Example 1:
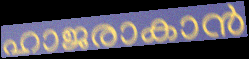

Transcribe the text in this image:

ഹാജരാകാൻ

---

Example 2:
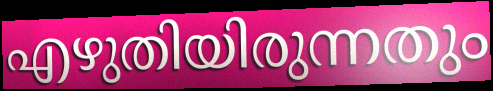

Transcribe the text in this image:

എഴുതിയിരുന്നതും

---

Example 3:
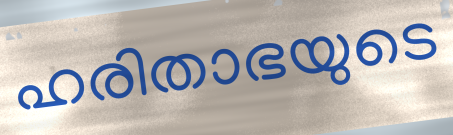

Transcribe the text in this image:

ഹരിതാഭയുടെ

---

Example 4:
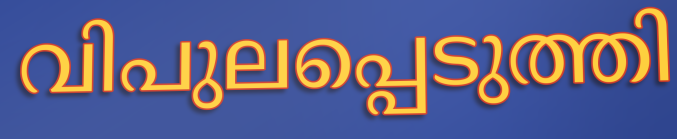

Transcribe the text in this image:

വിപുലപ്പെടുത്തി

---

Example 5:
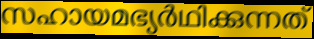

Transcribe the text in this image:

സഹായമഭ്യർഥിക്കുന്നത്